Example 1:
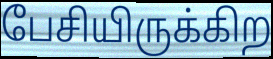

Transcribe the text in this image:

பேசியிருக்கிற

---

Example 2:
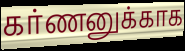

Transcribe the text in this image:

கர்ணனுக்காக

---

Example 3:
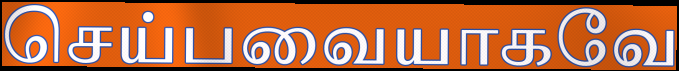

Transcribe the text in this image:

செய்பவையாகவே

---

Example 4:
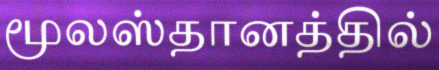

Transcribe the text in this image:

மூலஸ்தானத்தில்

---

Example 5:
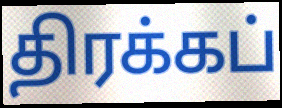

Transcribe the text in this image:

திரக்கப்